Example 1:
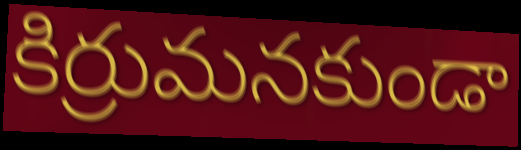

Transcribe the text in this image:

కిర్రుమనకుండా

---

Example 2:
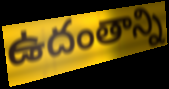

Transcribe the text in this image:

ఉదంతాన్ని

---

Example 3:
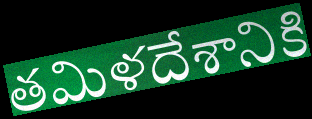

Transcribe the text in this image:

తమిళదేశానికి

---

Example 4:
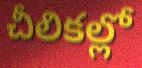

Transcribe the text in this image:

చీలికల్లో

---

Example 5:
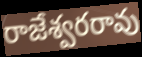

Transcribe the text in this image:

రాజేశ్వరరావు